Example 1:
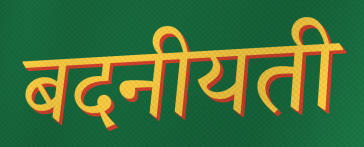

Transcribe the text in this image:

बदनीयती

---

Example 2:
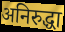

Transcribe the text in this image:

अनिरुद्धा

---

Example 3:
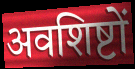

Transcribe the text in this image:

अवशिष्टों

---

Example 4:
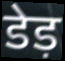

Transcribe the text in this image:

डेड़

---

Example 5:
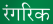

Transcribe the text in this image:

रंगरिक